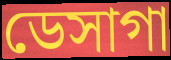
ডেসাগা